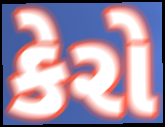
કેરો